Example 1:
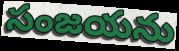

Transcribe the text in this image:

సంజయను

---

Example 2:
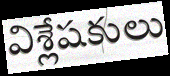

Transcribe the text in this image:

విశ్లేషకులు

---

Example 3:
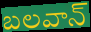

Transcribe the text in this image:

బలవాన్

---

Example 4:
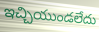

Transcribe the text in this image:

ఇచ్చియుండలేదు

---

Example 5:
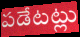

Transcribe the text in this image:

పడేటట్లు